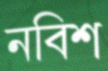
নবিশ